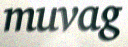
muvag